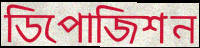
ডিপোজিশন